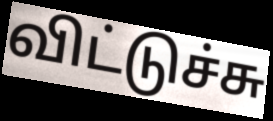
விட்டுச்சு